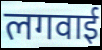
लगवाई